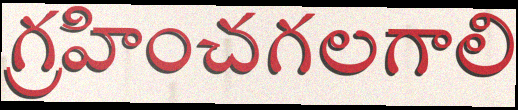
గ్రహించగలగాలి